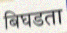
बिघडता